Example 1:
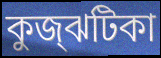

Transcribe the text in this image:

কুজ্‌ঝটিকা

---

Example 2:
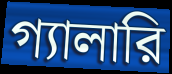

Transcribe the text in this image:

গ্যালারি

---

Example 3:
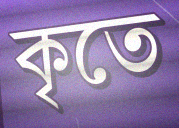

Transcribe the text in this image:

কৃতে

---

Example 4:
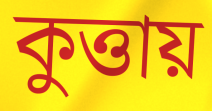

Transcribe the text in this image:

কুত্তায়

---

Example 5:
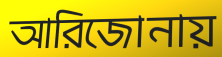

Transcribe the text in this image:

আরিজোনায়